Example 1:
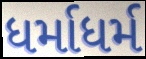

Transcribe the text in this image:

ધર્માધર્મ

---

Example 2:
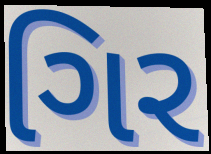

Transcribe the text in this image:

ગિર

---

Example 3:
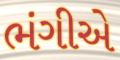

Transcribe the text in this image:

ભંગીએ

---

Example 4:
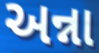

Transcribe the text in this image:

અન્ના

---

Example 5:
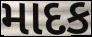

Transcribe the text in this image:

માદક